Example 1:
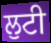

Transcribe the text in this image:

ਲੁਟੀ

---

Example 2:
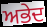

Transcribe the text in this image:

ਅਭੇਦ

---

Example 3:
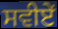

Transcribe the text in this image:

ਸਵੀਏਂ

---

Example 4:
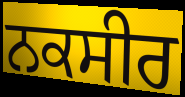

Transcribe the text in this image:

ਨਕਸੀਰ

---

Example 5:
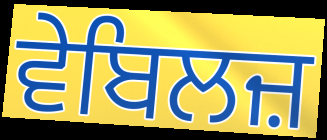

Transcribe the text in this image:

ਵੇਬਿਲਜ਼